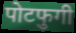
पोटफुगी